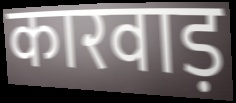
कारवाड़